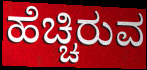
ಹೆಚ್ಚಿರುವ